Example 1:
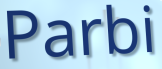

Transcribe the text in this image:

Parbi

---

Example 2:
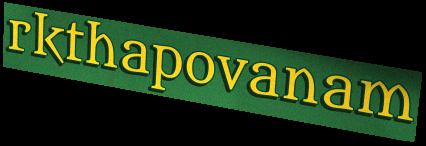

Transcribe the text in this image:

rkthapovanam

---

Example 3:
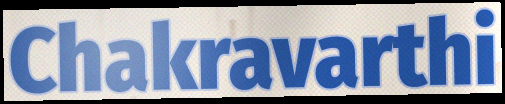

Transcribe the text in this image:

Chakravarthi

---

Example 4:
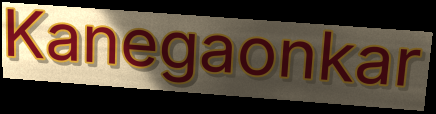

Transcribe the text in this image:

Kanegaonkar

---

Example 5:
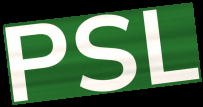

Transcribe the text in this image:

PSL